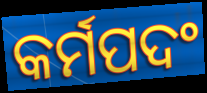
କର୍ମପଦଂ